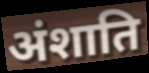
अंशाति